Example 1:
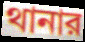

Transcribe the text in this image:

থানার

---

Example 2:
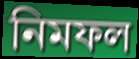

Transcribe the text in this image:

নিমফল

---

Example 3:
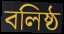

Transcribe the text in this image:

বলিষ্ঠ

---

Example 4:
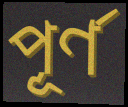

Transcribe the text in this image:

পূর্ণ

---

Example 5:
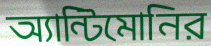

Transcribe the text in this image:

অ্যান্টিমোনির